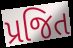
પ્રજિત